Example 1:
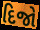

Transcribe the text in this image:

દિજો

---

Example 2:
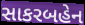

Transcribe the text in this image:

સાકરબહેન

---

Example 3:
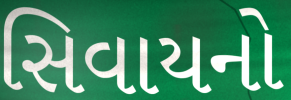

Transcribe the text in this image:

સિવાયનો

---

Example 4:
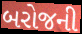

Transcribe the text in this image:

બરોજની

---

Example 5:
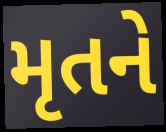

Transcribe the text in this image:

મૃતને